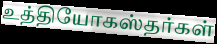
உத்தியோகஸ்தர்கள்